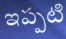
ఇప్పటి